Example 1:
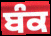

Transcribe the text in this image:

ਬੰਕ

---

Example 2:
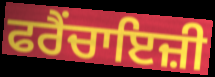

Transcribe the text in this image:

ਫਰੈਂਚਾਇਜ਼ੀ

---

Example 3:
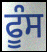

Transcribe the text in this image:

ਫੂੰਸ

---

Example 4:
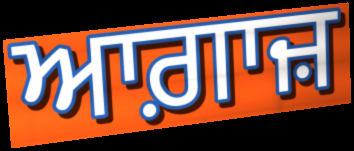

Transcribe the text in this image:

ਆਗ਼ਾਜ਼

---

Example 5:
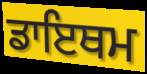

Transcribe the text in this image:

ਡਾਇਥਮ